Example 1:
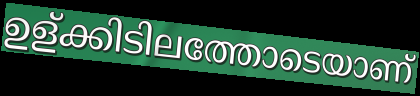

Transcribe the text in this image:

ഉള്ക്കിടിലത്തോടെയാണ്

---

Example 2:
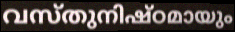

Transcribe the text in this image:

വസ്തുനിഷ്ഠമായും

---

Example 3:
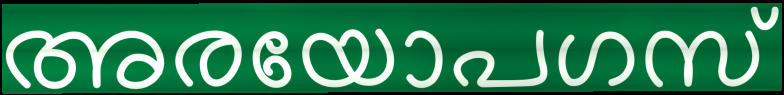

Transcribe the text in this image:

അരയോപഗസ്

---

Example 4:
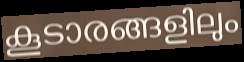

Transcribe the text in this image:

കൂടാരങ്ങളിലും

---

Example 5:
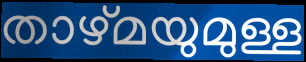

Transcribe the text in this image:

താഴ്മയുമുള്ള